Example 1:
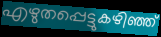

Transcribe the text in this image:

എഴുതപ്പെട്ടുകഴിഞ്ഞ്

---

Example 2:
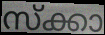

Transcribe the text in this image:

സ്ക്കാ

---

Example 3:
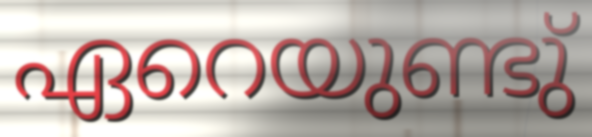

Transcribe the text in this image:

ഏറെയുണ്ടു്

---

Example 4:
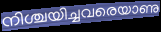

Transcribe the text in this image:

നിശ്ചയിച്ചവരെയാണു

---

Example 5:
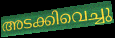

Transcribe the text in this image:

അടക്കിവെച്ചു